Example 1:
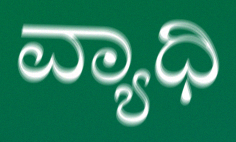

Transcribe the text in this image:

ವ್ಯಾಧಿ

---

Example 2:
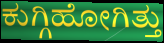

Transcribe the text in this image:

ಕುಗ್ಗಿಹೋಗಿತ್ತು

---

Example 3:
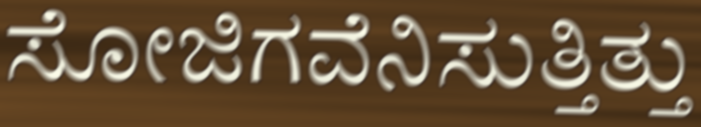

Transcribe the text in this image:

ಸೋಜಿಗವೆನಿಸುತ್ತಿತ್ತು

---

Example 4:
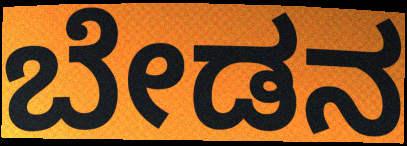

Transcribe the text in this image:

ಬೇಡನ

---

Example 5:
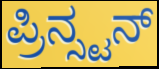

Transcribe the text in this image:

ಪ್ರಿನ್ಸ್ಟನ್